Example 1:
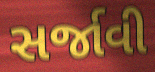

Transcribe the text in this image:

સર્જાવી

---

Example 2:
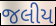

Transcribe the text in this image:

જલીય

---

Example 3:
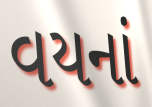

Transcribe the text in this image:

વયનાં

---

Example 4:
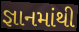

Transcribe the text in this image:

જ્ઞાનમાંથી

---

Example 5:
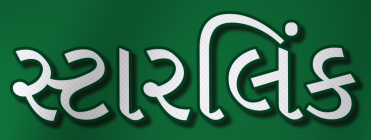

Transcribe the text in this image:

સ્ટારલિંક